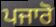
ਪਜਾਰੋ